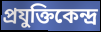
প্রযুক্তিকেন্দ্র